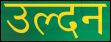
उल्दन